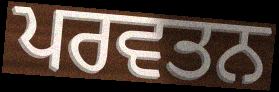
ਪਰਵਤਨ